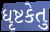
ધૃષ્ટકેતુ